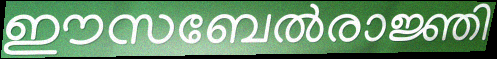
ഈസബേൽരാജ്ഞി